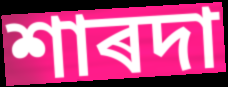
শাৰদা